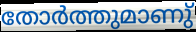
തോർത്തുമാണു്